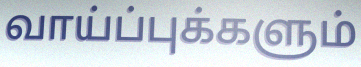
வாய்ப்புக்களும்